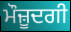
ਮੌਜ਼ੂਦਗੀ